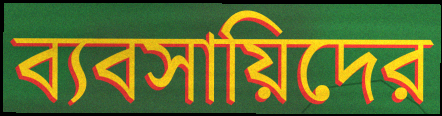
ব্যবসায়িদের